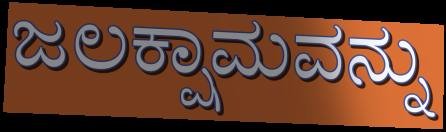
ಜಲಕ್ಷಾಮವನ್ನು